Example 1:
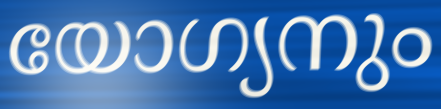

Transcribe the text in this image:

യോഗ്യനും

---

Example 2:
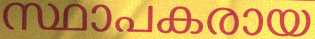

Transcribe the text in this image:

സ്ഥാപകരായ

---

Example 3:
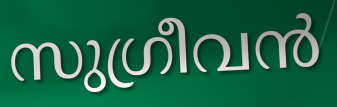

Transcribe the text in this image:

സുഗ്രീവൻ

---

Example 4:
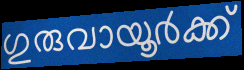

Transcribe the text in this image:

ഗുരുവായൂർക്ക്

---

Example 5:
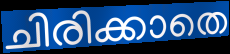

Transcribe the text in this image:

ചിരിക്കാതെ